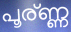
പൂര്ണ്ണ